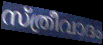
സ്ത്രീവാദം